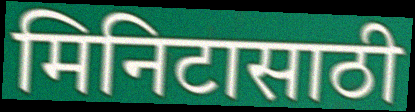
मिनिटासाठी